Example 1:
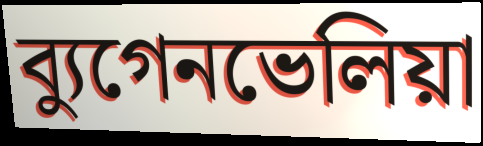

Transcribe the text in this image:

ব্যুগেনভেলিয়া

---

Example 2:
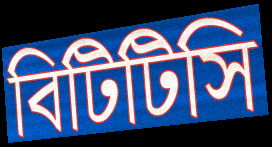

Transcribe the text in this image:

বিটিটিসি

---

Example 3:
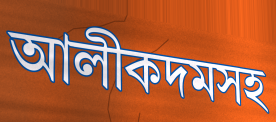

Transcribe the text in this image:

আলীকদমসহ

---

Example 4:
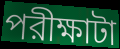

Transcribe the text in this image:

পরীক্ষাটা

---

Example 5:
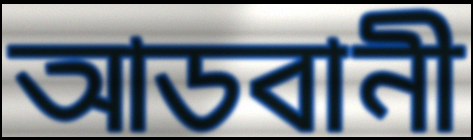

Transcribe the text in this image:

আডবানী